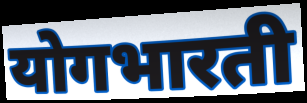
योगभारती